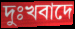
দুঃখবাদে